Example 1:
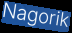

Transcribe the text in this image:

Nagorik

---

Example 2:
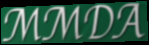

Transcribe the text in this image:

MMDA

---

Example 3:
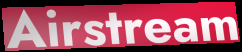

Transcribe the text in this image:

Airstream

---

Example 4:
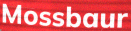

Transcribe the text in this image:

Mossbaur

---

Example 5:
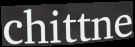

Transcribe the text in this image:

chittne